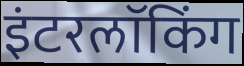
इंटरलॉकिंग